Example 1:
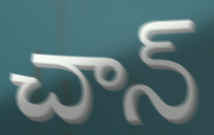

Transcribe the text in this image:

చాన్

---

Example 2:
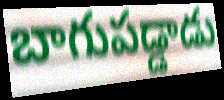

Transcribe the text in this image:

బాగుపడ్డాడు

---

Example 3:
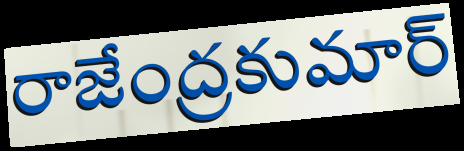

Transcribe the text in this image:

రాజేంద్రకుమార్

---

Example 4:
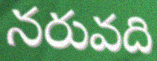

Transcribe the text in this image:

నరువది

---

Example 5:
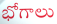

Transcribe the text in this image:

భోగాలు